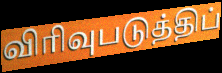
விரிவுபடுத்திப்